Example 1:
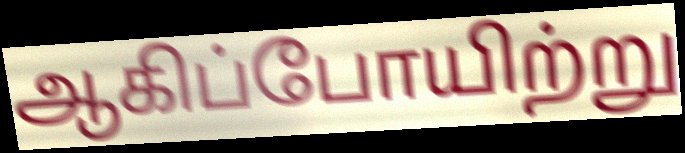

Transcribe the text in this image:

ஆகிப்போயிற்று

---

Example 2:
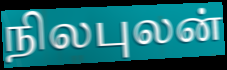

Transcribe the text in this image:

நிலபுலன்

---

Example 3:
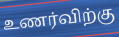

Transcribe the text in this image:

உணர்விற்கு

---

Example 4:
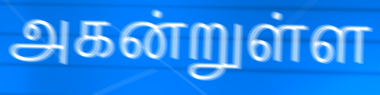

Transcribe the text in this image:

அகன்றுள்ள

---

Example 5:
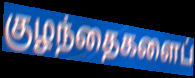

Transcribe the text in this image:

குழந்தைகளைப்